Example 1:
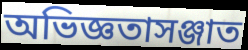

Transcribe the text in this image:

অভিজ্ঞতাসঞ্জাত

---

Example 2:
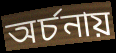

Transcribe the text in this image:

অর্চনায়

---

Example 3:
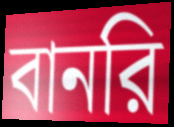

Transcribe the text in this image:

বানরি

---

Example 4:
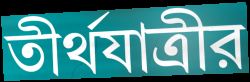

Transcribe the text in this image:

তীর্থযাত্রীর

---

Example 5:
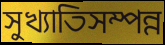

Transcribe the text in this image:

সুখ্যাতিসম্পন্ন